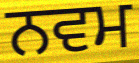
ਨਵਮ